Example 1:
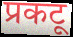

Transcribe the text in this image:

प्रकटू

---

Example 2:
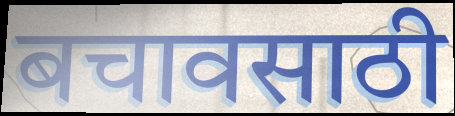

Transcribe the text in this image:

बचावसाठी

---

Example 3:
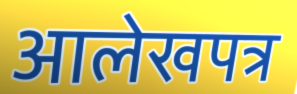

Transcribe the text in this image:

आलेखपत्र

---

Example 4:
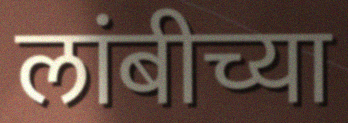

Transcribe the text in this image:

लांबीच्या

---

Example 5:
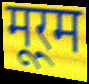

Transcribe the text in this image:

मूर्म